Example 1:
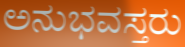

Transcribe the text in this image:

ಅನುಭವಸ್ತರು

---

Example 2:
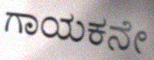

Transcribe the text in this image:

ಗಾಯಕನೇ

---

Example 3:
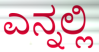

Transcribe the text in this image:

ಎನ್ನಲ್ಲಿ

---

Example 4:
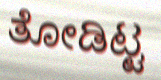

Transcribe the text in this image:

ತೋಡಿಟ್ಟ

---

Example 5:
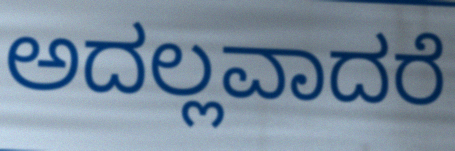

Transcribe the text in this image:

ಅದಲ್ಲವಾದರೆ